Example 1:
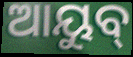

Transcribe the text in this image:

ଆୟୁବ୍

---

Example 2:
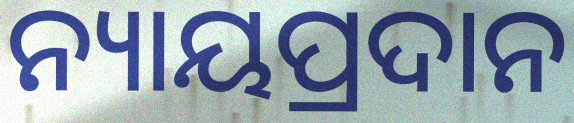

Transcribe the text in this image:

ନ୍ୟାୟପ୍ରଦାନ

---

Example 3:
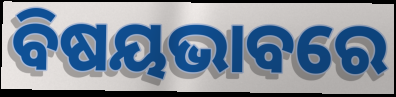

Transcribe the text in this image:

ବିଷୟଭାବରେ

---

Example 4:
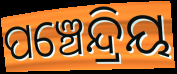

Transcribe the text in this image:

ପଞ୍ଚେନ୍ଦ୍ରିୟ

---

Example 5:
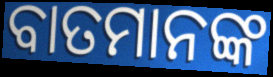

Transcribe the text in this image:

ବାତମାନଙ୍କ